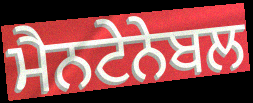
ਮੈਨਟੇਨੇਬਲ